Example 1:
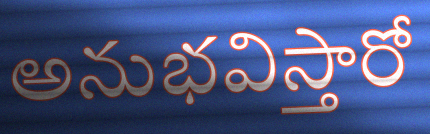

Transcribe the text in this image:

అనుభవిస్తారో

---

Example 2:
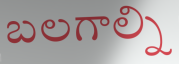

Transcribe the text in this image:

బలగాల్ని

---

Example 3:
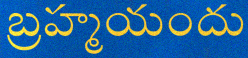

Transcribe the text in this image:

బ్రహ్మయందు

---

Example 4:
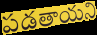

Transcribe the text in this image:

పడతాయని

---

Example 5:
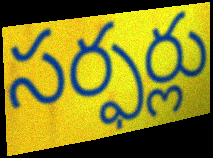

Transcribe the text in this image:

సర్ఫర్లు